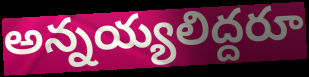
అన్నయ్యలిద్దరూ